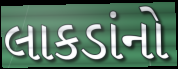
લાકડાંનો